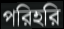
পরিহরি